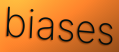
biases